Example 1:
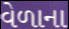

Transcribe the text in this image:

વેળાના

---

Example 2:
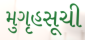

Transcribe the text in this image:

મુગૃહસૂચી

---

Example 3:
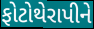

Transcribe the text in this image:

ફોટોથેરાપીને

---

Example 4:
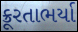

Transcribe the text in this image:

ક્રૂરતાભર્યા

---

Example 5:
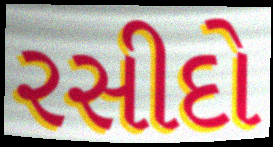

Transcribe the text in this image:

રસીદો